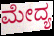
ಮೇದ್ಯ